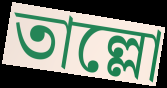
তাল্লো